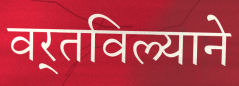
वर्तविल्याने